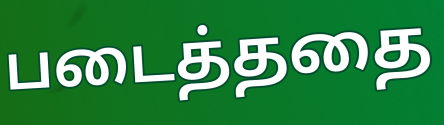
படைத்ததை